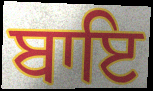
ਬਾਇ